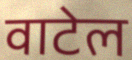
वाटेल